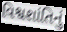
વિશ્વશાંતિનું